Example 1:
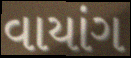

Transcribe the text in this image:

વાયાંગ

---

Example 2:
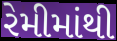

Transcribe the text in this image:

રેમીમાંથી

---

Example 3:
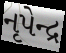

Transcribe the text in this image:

નૃપેન્દ્ર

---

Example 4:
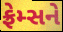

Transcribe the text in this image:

ફ્રેમ્સને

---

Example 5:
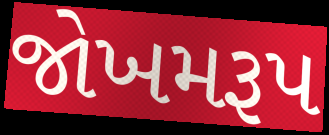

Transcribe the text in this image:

જોખમરૂપ